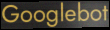
Googlebot